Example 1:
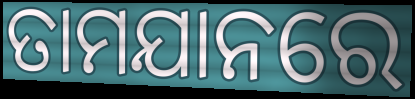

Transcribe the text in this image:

ତାମଯାନରେ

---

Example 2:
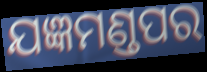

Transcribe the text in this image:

ଯଜ୍ଞମଣ୍ଡପର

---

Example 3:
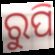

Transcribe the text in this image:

ରୁପି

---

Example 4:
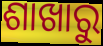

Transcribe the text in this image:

ଶାଖାରୁ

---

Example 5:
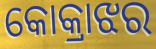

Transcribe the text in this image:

କୋକ୍ରାଝର